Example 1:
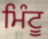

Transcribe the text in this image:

ਮਿੰਟੂ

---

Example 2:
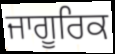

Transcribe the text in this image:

ਜਾਗੂਰਿਕ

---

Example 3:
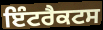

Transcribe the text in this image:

ਇੰਟਰੈਕਟਸ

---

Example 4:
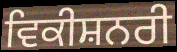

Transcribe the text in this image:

ਵਿਕੀਸ਼ਨਰੀ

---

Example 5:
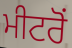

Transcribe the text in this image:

ਮੀਟਰੋਂ